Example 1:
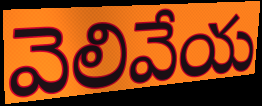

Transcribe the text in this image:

వెలివేయ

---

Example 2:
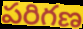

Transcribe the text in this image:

పరిగణ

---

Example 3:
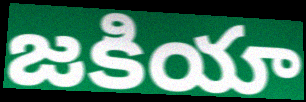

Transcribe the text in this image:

జకియా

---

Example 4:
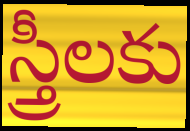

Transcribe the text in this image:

స్త్రీలకు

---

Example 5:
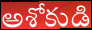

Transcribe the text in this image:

అశోకుడి